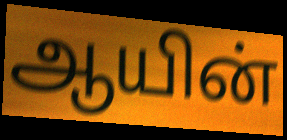
ஆயின்